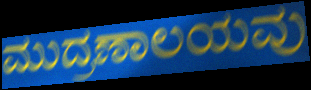
ಮುದ್ರಣಾಲಯವು